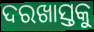
ଦରଖାସ୍ତକୁ